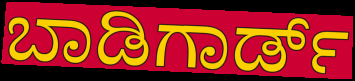
ಬಾಡಿಗಾರ್ಡ್